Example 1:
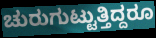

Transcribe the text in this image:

ಚುರುಗುಟ್ಟುತ್ತಿದ್ದರೂ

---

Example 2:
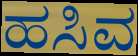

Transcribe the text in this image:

ಹಸಿವ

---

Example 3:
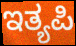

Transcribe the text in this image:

ಇತ್ಯಪಿ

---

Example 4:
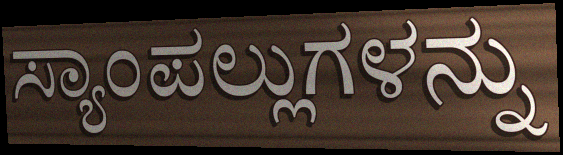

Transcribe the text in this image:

ಸ್ಯಾಂಪಲ್ಲುಗಳನ್ನು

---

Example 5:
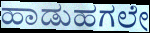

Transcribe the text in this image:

ಹಾಡುಹಗಲೇ